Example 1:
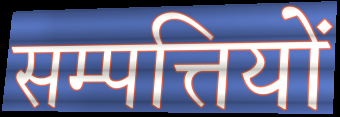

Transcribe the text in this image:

सम्पत्तियों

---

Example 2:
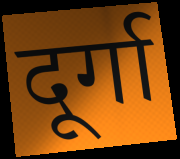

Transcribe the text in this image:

दूर्गा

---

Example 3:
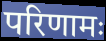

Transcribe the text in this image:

परिणामः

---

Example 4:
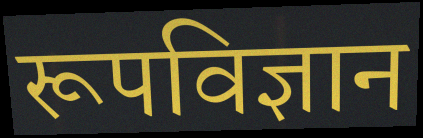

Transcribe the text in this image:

रूपविज्ञान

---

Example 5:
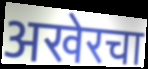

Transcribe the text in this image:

अखेरचा